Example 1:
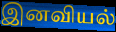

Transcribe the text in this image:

இனவியல்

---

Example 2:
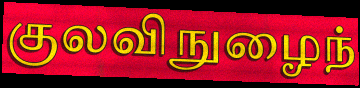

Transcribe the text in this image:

குலவிநுழைந்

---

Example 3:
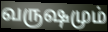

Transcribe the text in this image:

வருஷமும்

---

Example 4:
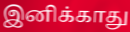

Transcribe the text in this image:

இனிக்காது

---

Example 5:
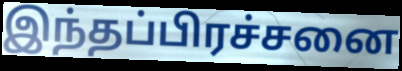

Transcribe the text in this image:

இந்தப்பிரச்சனை